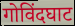
गोविंदघाट